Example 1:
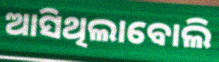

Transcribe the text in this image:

ଆସିଥିଲାବୋଲି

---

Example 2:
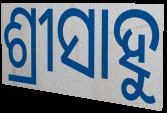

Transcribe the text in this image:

ଶ୍ରୀସାହୁ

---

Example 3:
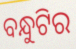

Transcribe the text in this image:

ବନ୍ଧୁଟିର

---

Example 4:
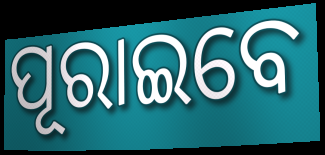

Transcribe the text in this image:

ପୂରାଇବେ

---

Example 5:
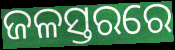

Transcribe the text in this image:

ଜଳସ୍ତରରେ